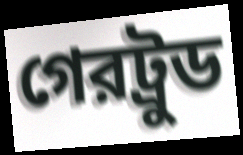
গেরট্রুড